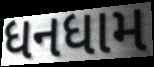
ધનધામ